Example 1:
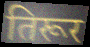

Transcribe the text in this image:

तिरूर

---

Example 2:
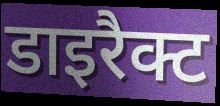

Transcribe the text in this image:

डाइरैक्ट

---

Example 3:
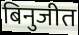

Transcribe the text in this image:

बिनुजीत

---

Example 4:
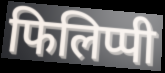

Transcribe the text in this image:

फिलिप्पी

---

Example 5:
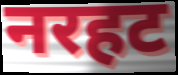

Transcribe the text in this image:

नरहट